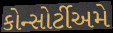
કોન્સોર્ટીઅમે